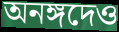
অনঙ্গদেও